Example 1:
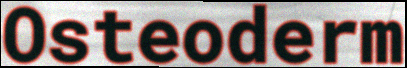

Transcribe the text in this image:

Osteoderm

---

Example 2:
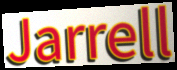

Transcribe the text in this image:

Jarrell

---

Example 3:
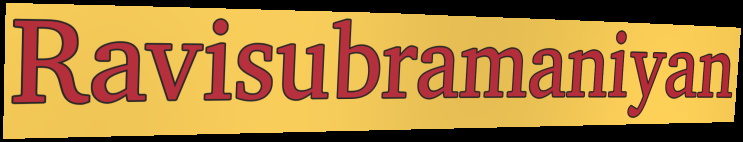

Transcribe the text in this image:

Ravisubramaniyan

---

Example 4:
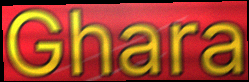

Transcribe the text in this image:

Ghara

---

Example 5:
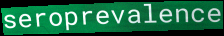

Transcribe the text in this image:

seroprevalence